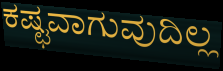
ಕಷ್ಟವಾಗುವುದಿಲ್ಲ